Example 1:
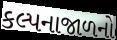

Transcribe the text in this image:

કલ્પનાજાળનો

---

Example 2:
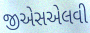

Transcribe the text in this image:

જીએસએલવી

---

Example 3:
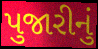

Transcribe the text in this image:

પુજારીનું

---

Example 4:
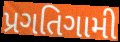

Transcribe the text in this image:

પ્રગતિગામી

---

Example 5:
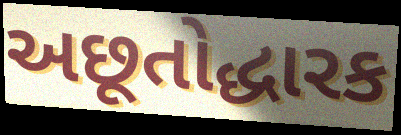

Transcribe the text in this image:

અછૂતોદ્ધારક